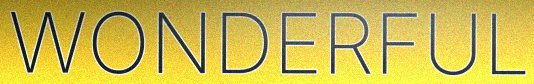
WONDERFUL